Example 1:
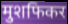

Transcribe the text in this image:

मुशफिकर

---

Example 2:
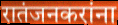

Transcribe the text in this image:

रातंजनकरांना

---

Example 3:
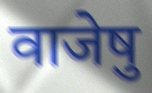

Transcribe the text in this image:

वाजेषु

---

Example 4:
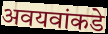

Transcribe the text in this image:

अवयवांकडे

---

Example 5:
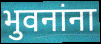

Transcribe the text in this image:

भुवनांना